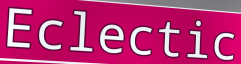
Eclectic